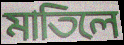
মাতিলে